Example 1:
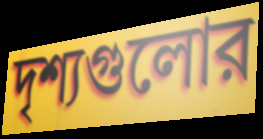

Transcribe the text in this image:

দৃশ্যগুলোর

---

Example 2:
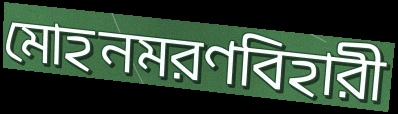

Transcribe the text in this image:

মোহনমরণবিহারী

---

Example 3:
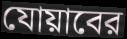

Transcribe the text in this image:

যোয়াবের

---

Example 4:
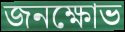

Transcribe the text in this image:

জনক্ষোভ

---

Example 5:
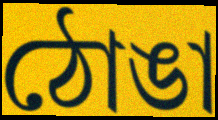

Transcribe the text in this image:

ঠোঙা